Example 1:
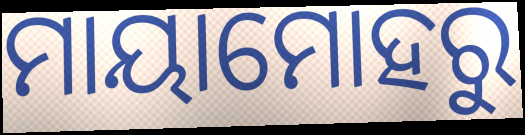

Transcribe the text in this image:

ମାୟାମୋହରୁ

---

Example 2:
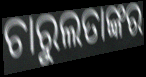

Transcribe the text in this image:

ଚାରୁଲତାଙ୍କର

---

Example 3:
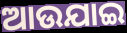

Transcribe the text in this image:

ଆଉଯାଇ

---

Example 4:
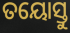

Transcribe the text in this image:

ତୟୋସ୍ତୁ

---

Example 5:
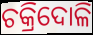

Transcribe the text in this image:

ଚକ୍ରିଦୋଳି